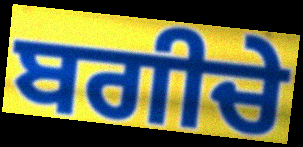
ਬਗੀਚੇ